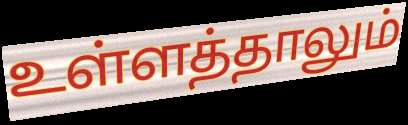
உள்ளத்தாலும்